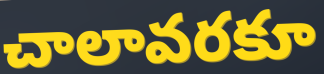
చాలావరకూ